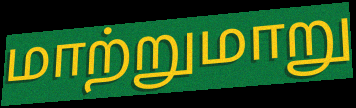
மாற்றுமாறு